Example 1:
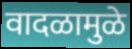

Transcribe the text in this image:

वादळामुळे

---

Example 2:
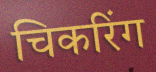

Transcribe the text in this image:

चिकरिंग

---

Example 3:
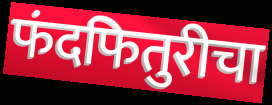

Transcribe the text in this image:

फंदफितुरीचा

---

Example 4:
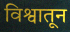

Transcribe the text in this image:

विश्वातून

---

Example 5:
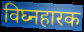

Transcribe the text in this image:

विघ्नहारक